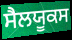
ਸੈਲਯੂਕਸ